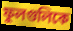
ফুলগুলিকে